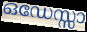
ഒഡേസ്സാ